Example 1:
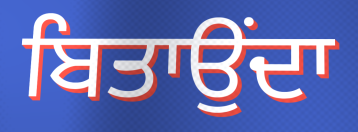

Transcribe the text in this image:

ਬਿਤਾਉਂਦਾ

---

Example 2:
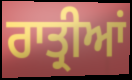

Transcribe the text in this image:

ਰਾਤ੍ਰੀਆਂ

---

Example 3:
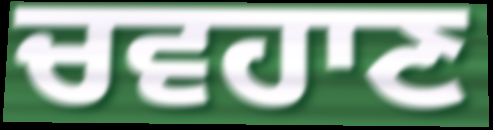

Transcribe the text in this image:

ਚਵਹਾਣ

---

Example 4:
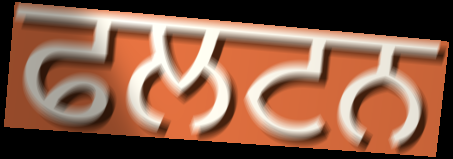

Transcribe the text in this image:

ਫਲਟਨ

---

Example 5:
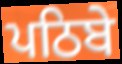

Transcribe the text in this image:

ਪਠਿਬੇ